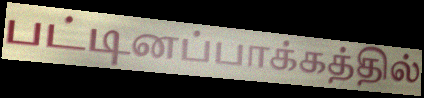
பட்டினப்பாக்கத்தில்